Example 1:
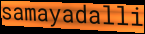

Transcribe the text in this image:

samayadalli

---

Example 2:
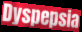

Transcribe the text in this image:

Dyspepsia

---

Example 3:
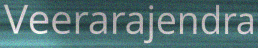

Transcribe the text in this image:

Veerarajendra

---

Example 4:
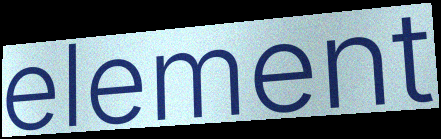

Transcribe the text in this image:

element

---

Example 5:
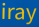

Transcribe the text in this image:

iray